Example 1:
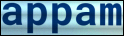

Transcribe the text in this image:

appam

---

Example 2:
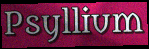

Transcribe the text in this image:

Psyllium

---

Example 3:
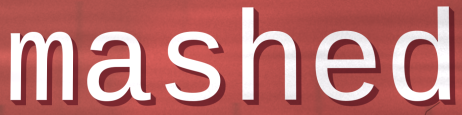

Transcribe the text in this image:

mashed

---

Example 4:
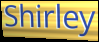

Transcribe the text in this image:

Shirley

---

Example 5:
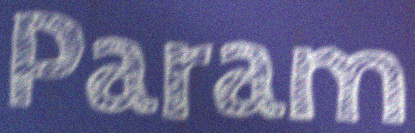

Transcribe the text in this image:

Param